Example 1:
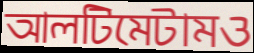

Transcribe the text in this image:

আলটিমেটামও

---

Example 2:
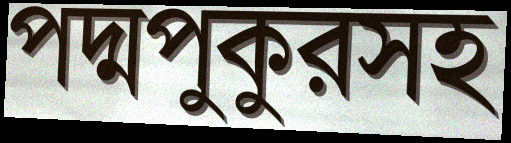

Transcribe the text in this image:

পদ্মপুকুরসহ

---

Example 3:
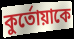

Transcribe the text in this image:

কুর্তোয়াকে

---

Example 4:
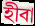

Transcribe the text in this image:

হীবা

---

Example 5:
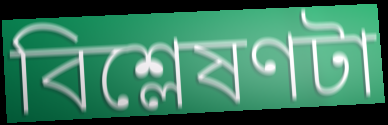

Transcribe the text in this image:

বিশ্লেষণটা